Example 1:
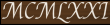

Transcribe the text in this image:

MCMLXXI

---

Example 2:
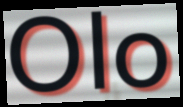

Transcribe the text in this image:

Olo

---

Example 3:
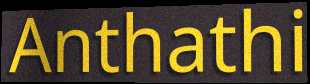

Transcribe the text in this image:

Anthathi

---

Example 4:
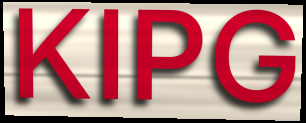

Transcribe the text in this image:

KIPG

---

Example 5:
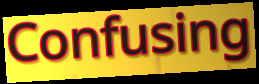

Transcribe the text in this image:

Confusing